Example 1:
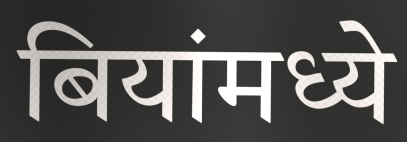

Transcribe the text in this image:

बियांमध्ये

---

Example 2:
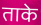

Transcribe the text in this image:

ताके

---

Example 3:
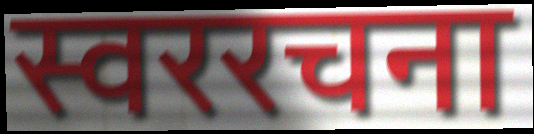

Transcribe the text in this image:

स्वररचना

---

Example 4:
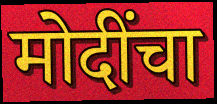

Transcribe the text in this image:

मोदींचा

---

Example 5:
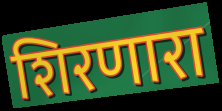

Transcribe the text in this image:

शिरणारा